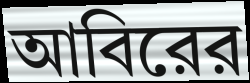
আবিরের